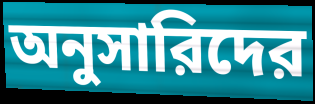
অনুসারিদের